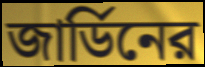
জার্ডিনের